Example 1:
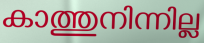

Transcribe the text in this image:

കാത്തുനിന്നില്ല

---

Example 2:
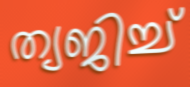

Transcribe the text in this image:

ത്യജിച്ച്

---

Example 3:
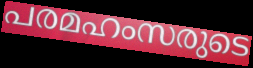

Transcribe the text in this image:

പരമഹംസരുടെ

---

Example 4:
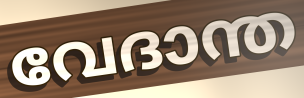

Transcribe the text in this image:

വേദാന്ത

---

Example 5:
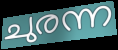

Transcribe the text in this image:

ചുരന്ന